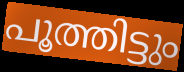
പൂത്തിട്ടും